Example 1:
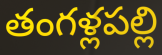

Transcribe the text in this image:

తంగళ్లపల్లి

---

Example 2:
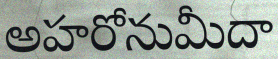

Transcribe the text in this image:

అహరోనుమీదా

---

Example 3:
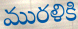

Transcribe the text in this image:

మురళికి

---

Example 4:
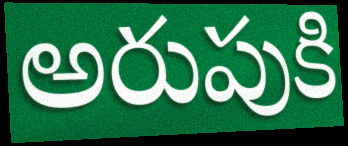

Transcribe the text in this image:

అరుపుకి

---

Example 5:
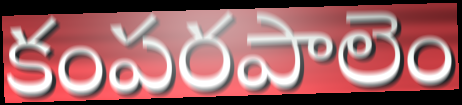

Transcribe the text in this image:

కంపరపాలెం